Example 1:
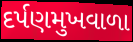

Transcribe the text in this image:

દર્પણમુખવાળા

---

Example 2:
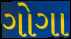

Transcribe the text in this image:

ગોગા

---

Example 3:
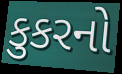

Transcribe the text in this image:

કુકરનો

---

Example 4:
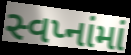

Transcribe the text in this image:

સ્વપ્નાંમાં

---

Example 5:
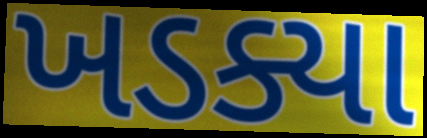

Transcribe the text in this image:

ખડક્યા